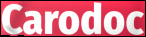
Carodoc